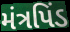
મંત્રપિંડ